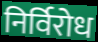
निर्विरोध